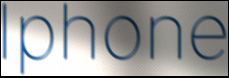
Iphone